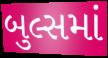
બુલ્સમાં